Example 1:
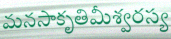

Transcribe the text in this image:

మనసాకృతిమీశ్వరస్య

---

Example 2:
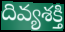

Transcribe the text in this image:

దివ్యశక్తి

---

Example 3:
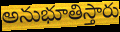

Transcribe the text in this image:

అనుభూతిస్తారు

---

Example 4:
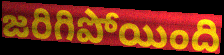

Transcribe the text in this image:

జరిగిపోయింది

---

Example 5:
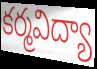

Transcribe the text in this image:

కర్మవిద్యా